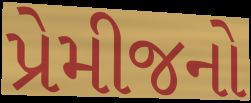
પ્રેમીજનો